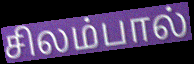
சிலம்பால்